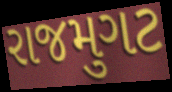
રાજમુગટ